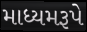
માધ્યમરૂપે